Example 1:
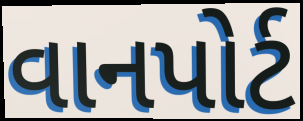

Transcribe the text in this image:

વાનપોર્ટ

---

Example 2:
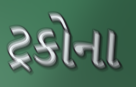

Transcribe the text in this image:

ટ્રકોના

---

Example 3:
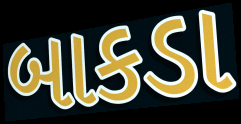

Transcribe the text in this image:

બાકડા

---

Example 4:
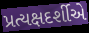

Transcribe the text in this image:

પ્રત્યક્ષદર્શીએ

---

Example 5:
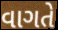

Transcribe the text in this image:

વાગતે